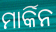
ମାର୍କିନ